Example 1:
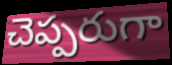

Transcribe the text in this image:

చెప్పరుగా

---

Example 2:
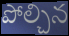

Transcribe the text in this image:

పోల్చిన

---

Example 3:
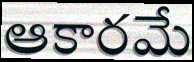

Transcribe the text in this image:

ఆకారమే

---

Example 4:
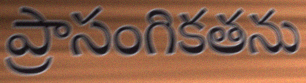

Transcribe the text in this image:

ప్రాసంగికతను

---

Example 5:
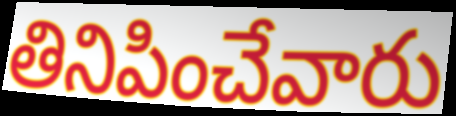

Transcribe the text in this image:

తినిపించేవారు